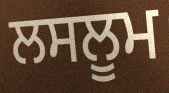
ਲਸਲੂਮ